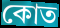
কোত